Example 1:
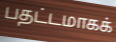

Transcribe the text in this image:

பதட்டமாகக்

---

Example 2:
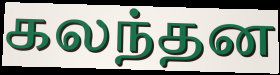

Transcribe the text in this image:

கலந்தன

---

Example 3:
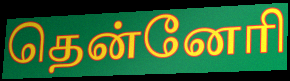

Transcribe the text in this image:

தென்னேரி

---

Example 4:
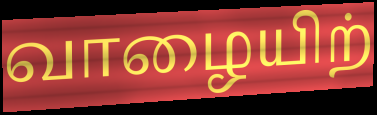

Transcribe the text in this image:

வாழையிற்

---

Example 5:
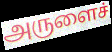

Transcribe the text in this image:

அருளைச்